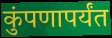
कुंपणापर्यंत